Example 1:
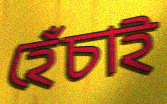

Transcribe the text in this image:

হেঁচাই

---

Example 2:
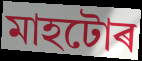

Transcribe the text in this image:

মাহটোৰ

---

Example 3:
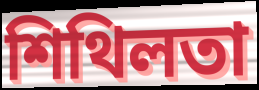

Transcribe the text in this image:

শিথিলতা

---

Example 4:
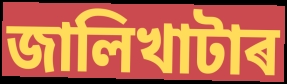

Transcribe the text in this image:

জালিখাটাৰ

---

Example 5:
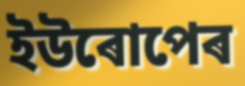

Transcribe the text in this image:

ইউৰোপেৰ